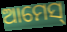
ଆମେସ୍